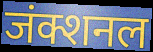
जंक्शनल